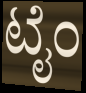
ಟೈಂ